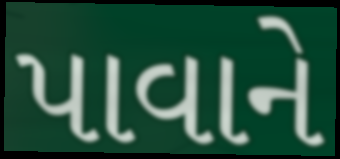
પાવાને